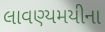
લાવણ્યમયીના